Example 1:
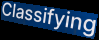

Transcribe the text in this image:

Classifying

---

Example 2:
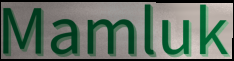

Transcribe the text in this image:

Mamluk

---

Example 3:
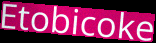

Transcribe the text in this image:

Etobicoke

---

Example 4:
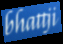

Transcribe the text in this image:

bhattji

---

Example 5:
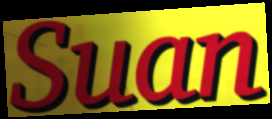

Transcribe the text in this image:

Suan